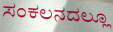
ಸಂಕಲನದಲ್ಲೂ